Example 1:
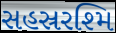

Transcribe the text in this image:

સહસ્રરશ્મિ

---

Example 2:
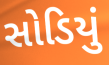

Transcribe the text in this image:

સોડિયું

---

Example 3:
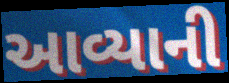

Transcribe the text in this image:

આવ્યાની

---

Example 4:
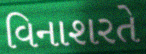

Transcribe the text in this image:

વિનાશરતે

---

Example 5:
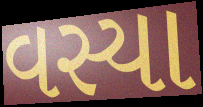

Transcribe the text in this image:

વસ્યા